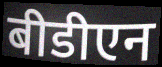
बीडीएन